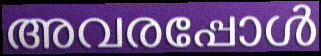
അവരപ്പോൾ